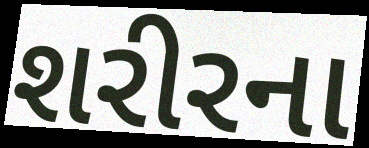
શરીરના